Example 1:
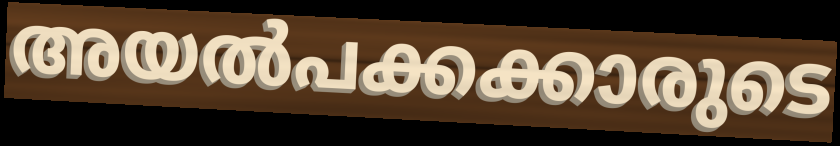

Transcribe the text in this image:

അയൽപക്കക്കാരുടെ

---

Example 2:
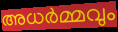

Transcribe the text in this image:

അധർമ്മവും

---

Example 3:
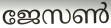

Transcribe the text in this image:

ജേസൺ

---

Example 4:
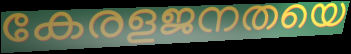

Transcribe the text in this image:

കേരളജനതയെ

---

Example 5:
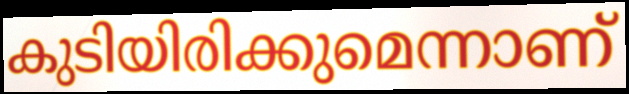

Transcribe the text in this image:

കുടിയിരിക്കുമെന്നാണ്